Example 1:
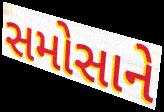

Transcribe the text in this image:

સમોસાને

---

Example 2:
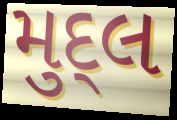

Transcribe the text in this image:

મુદ્લ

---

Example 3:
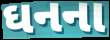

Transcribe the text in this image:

ઘનના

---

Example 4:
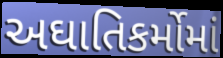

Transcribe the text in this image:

અઘાતિકર્મોમાં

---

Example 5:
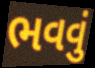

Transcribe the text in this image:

ભવવું